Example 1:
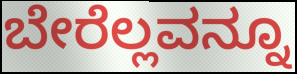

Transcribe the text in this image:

ಬೇರೆಲ್ಲವನ್ನೂ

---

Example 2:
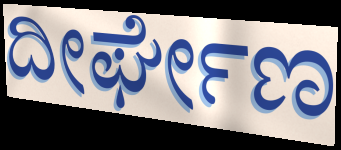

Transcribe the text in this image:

ದೀರ್ಘೇಣ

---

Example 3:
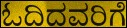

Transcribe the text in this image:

ಓದಿದವರಿಗೆ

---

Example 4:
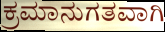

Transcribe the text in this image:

ಕ್ರಮಾನುಗತವಾಗಿ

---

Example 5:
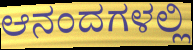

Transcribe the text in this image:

ಆನಂದಗಳಲ್ಲಿ